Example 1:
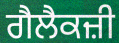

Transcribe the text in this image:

ਗੈਲੈਕਜ਼ੀ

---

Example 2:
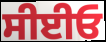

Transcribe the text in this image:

ਸੀਈਓ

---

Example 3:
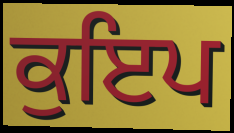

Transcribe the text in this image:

ਕੁਇਪ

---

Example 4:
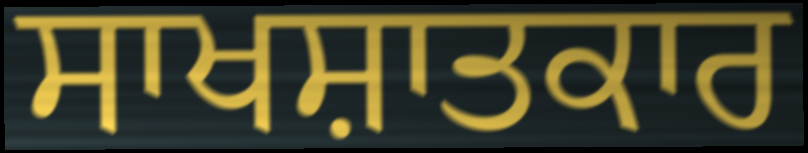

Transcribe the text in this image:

ਸਾਖਸ਼ਾਤਕਾਰ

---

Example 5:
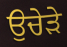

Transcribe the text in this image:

ਉਚੇੜੇ